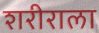
शरीराला